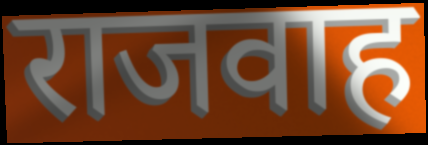
राजवाह